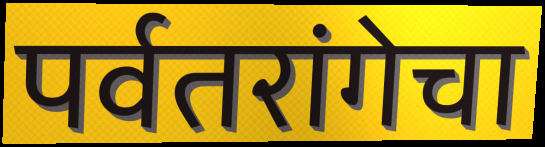
पर्वतरांगेचा